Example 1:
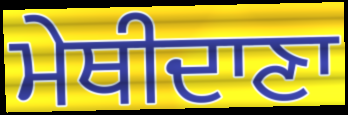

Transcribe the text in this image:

ਮੇਥੀਦਾਣਾ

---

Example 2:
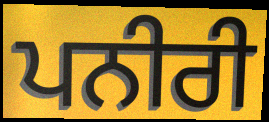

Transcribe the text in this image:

ਪਨੀਰੀ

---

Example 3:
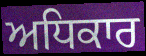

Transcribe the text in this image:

ਅਧਿਕਾਰ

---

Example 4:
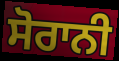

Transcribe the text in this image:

ਸੋਰਾਨੀ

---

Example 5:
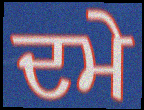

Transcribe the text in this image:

ਦਮੇ